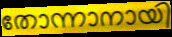
തോന്നാനായി